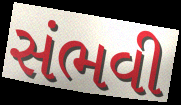
સંભવી